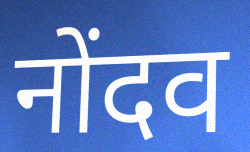
नोंदव